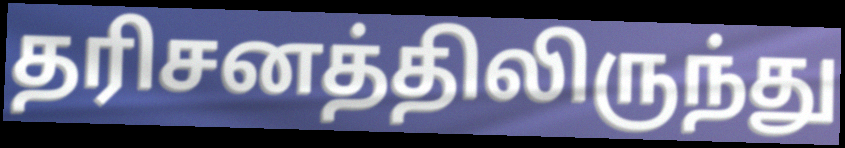
தரிசனத்திலிருந்து